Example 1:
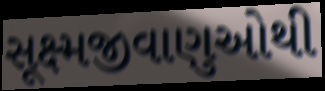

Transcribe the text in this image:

સૂક્ષ્મજીવાણુઓથી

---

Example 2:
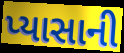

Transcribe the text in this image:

પ્યાસાની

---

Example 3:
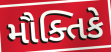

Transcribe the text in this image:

મૌક્તિકે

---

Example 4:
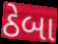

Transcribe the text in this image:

ઠેબા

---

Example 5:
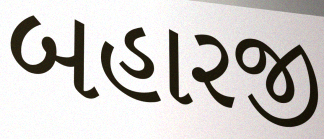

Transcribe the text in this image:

બહારજી